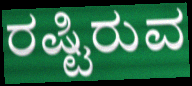
ರಷ್ಟಿರುವ